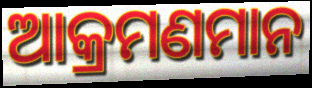
ଆକ୍ରମଣମାନ